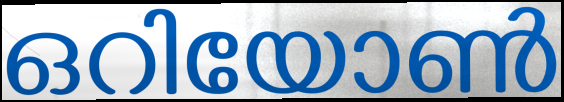
ഒറിയോൺ